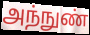
அந்நுண்